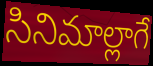
సినిమాల్లాగే